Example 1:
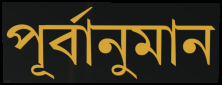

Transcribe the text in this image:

পূর্বানুমান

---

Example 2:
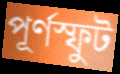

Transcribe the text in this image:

পূর্ণস্ফুট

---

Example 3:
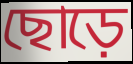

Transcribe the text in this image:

ছোড়ে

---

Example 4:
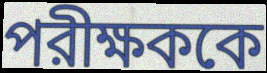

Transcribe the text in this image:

পরীক্ষককে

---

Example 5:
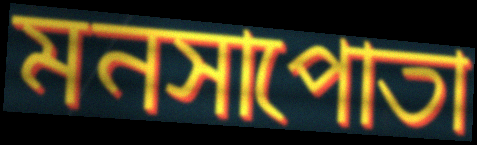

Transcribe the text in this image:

মনসাপোতা